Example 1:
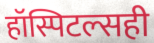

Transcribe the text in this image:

हॉस्पिटल्सही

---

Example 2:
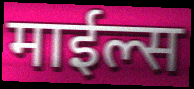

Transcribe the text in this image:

माईल्स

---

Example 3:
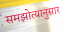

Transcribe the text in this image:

समझोत्यानुसार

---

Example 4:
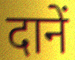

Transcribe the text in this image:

दानें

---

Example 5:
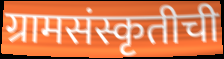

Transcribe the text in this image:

ग्रामसंस्कृतीची